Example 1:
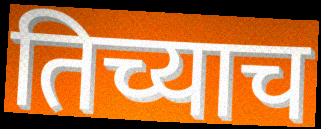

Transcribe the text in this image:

तिच्याच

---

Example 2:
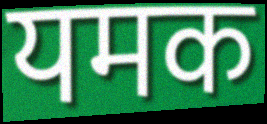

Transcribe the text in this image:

यमक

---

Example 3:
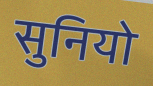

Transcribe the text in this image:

सुनियो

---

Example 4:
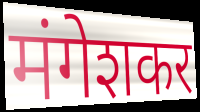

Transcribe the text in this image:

मंगेशकर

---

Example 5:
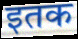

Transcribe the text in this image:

इतक